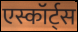
एस्कॉर्ट्स